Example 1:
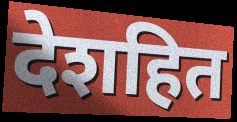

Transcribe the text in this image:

देशहित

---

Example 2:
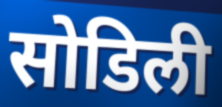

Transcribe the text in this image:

सोडिली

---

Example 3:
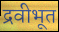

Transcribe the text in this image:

द्रवीभूत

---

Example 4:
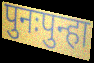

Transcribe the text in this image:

पुनःपुन्हा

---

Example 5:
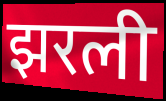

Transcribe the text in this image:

झरली